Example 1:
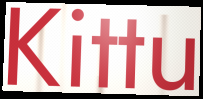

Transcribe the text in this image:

Kittu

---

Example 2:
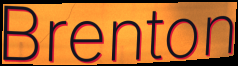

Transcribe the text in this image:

Brenton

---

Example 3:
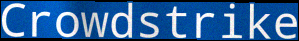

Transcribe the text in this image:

Crowdstrike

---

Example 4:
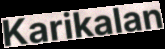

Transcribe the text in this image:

Karikalan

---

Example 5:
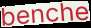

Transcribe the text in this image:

benche